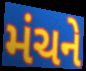
મંચને